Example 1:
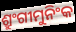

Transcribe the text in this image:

ଶ୍ରୁଂଗୀମୁନିଂକ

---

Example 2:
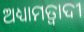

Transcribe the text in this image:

ଅଧ୍ୟାମତ୍ବାଦୀ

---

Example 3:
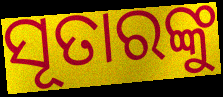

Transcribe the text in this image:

ସୂତାରଙ୍କୁ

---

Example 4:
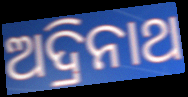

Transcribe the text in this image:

ଅଦ୍ରିନାଥ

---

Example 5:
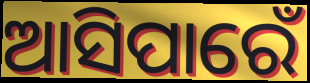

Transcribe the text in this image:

ଆସିପାରେଁ